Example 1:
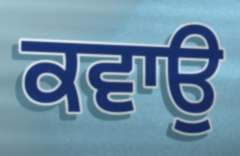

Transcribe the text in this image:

ਕਵਾਉ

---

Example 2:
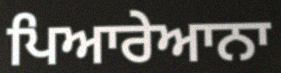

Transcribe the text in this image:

ਪਿਆਰੇਆਨਾ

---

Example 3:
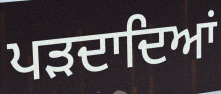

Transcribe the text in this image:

ਪੜਦਾਦਿਆਂ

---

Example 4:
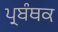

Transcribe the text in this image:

ਪ੍ਰਬੰਥਕ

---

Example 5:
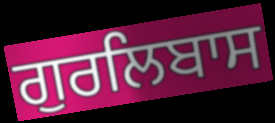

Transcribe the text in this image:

ਗੁਰਲਿਬਾਸ